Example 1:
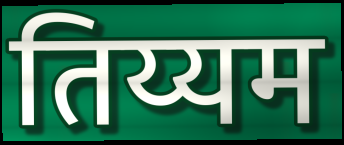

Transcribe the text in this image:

तिय्यम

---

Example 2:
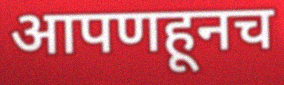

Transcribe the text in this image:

आपणहूनच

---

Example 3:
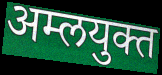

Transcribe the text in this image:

अम्लयुक्त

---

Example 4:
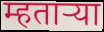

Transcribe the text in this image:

म्हताऱ्या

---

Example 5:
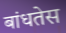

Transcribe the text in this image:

बांधतेस